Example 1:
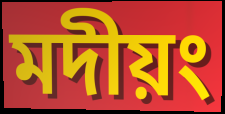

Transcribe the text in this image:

মদীয়ং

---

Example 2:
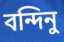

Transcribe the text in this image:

বন্দিনু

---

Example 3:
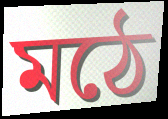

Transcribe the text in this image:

মঠে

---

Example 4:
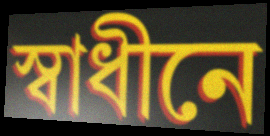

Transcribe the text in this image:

স্বাধীনে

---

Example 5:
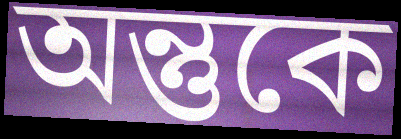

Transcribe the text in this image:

অন্তুকে